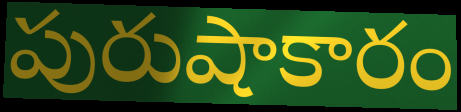
పురుషాకారం